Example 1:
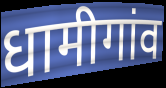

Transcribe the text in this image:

धामीगांव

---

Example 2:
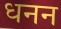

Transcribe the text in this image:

धनन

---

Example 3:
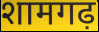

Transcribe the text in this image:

शामगढ़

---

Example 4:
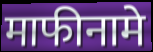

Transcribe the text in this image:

माफीनामे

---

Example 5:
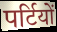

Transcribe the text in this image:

पर्टियों